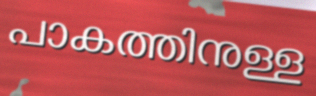
പാകത്തിനുള്ള